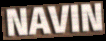
NAVIN